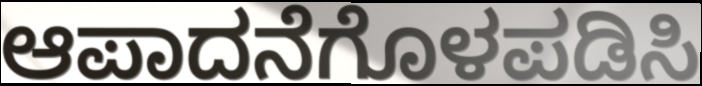
ಆಪಾದನೆಗೊಳಪಡಿಸಿ